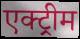
एक्ट्रीम